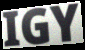
IGY